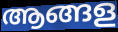
ആങ്ങള